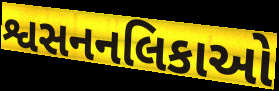
શ્વસનનલિકાઓ